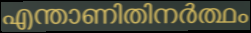
എന്താണിതിനർത്ഥം